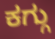
ಕಗ್ಗು